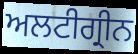
ਅਲਟੀਗ੍ਰੀਨ